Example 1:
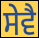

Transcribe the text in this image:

ਸੇਵੈ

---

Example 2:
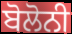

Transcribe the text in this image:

ਬੋਲੋਨੀ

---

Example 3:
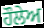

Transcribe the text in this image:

ਹੌਲੇਅ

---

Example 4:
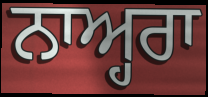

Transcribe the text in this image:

ਨਾਅ੍ਹਰਾ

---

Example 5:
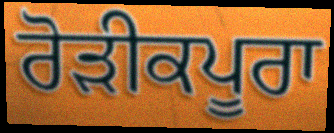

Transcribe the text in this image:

ਰੋੜੀਕਪੂਰਾ